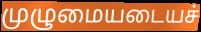
முழுமையடையச்